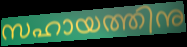
സഹായത്തിനു